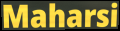
Maharsi